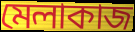
মেলাকাজ